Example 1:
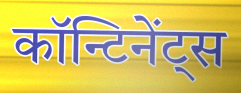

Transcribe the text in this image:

कॉन्टिनेंट्स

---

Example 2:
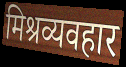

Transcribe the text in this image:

मिश्रव्यवहार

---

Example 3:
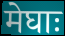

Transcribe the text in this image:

मेघाः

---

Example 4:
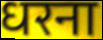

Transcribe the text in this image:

धरना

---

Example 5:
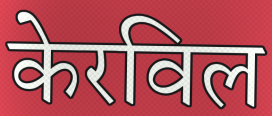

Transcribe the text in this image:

केरविल